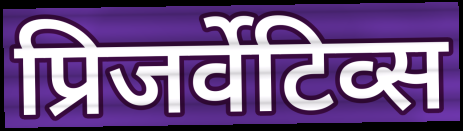
प्रिजर्वेटिव्स